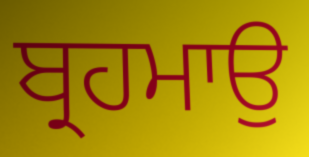
ਬ੍ਰਹਮਾਉ